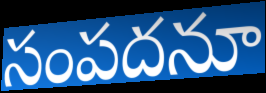
సంపదనూ